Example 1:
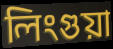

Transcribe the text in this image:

লিংগুয়া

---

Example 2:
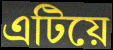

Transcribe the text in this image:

এটিয়ে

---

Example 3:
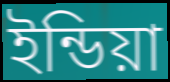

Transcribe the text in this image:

ইন্ডিয়া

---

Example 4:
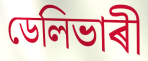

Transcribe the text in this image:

ডেলিভাৰী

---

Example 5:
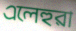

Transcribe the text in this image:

এলেহুৱা